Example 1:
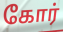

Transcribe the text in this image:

கோர்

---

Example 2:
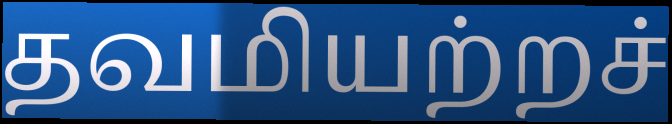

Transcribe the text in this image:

தவமியற்றச்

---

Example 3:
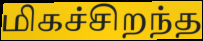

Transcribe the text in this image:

மிகச்சிறந்த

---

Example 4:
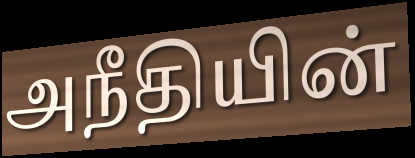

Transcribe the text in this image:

அநீதியின்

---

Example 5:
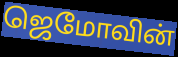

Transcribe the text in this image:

ஜெமோவின்